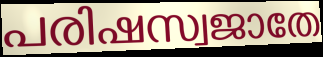
പരിഷസ്വജാതേ